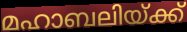
മഹാബലിയ്ക്ക്